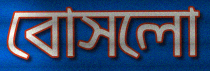
বোসলো